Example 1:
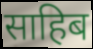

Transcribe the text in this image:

साहिब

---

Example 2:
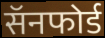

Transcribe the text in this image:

सॅनफोर्ड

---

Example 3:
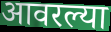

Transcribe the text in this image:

आवरल्या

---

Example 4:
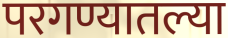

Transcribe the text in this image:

परगण्यातल्या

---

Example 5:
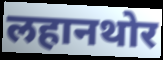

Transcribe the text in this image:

लहानथोर